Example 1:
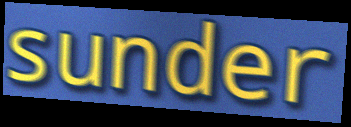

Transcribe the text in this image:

sunder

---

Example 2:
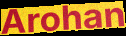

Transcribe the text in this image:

Arohan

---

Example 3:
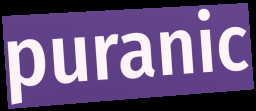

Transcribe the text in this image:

puranic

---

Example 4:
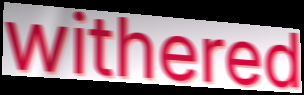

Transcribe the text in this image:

withered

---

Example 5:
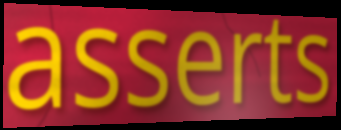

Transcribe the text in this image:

asserts